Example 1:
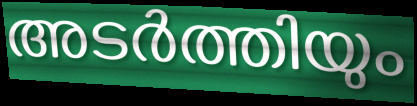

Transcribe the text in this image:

അടർത്തിയും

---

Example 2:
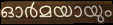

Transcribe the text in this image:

ഓർമയായും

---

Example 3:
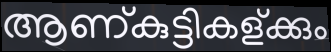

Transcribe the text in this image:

ആണ്കുട്ടികള്ക്കും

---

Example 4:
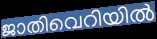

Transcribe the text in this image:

ജാതിവെറിയിൽ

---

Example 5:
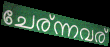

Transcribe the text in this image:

ചേര്ന്നവര്